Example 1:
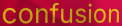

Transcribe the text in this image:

confusion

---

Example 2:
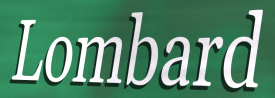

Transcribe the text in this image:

Lombard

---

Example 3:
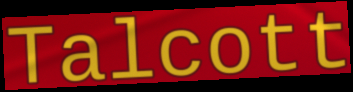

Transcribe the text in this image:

Talcott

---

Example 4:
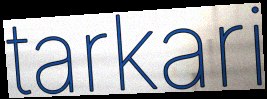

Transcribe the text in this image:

tarkari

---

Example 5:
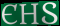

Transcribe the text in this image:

EHS